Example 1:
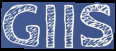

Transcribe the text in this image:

GIIS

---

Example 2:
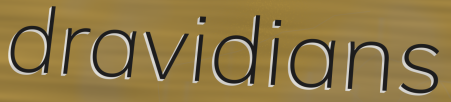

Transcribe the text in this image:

dravidians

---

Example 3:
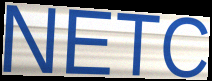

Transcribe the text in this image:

NETC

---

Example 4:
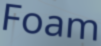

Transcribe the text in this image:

Foam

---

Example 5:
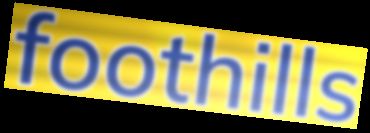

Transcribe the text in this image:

foothills